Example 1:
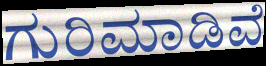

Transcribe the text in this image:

ಗುರಿಮಾಡಿವೆ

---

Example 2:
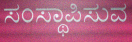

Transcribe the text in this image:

ಸಂಸ್ಥಾಪಿಸುವ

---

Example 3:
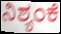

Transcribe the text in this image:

ನಿಶ್ಯಂಕೆ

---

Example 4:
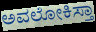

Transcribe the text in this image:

ಅವಲೋಕಿಸ್ತಾ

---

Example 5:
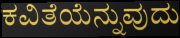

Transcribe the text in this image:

ಕವಿತೆಯೆನ್ನುವುದು